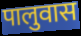
पालुवास